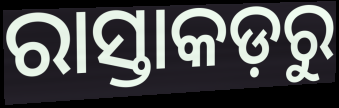
ରାସ୍ତାକଡ଼ରୁ